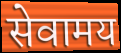
सेवामय